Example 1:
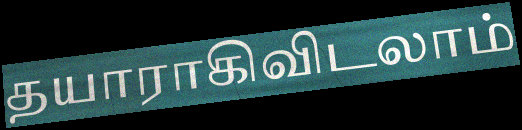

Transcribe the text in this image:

தயாராகிவிடலாம்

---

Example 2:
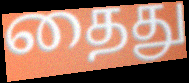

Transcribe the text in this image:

தைது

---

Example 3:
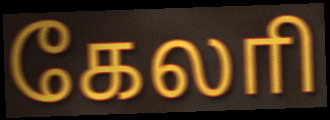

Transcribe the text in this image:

கேலரி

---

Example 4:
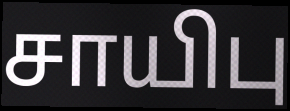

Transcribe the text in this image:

சாயிபு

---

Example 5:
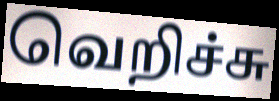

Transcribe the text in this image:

வெறிச்சு